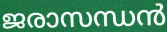
ജരാസന്ധൻ